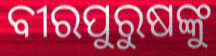
ବୀରପୁରୁଷଙ୍କୁ